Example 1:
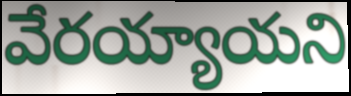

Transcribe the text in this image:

వేరయ్యాయని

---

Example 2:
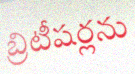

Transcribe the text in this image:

బ్రిటీషర్లను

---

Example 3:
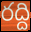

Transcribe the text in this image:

రద్ది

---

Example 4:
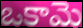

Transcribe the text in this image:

ఒకామె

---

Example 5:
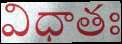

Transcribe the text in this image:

విధాతః